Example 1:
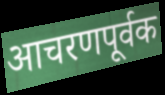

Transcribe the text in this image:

आचरणपूर्वक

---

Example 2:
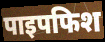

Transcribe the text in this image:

पाइपफिश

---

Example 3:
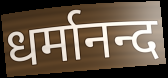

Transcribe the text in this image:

धर्मानन्द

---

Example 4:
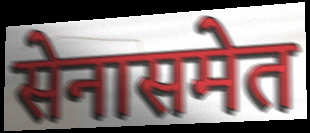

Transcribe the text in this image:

सेनासमेत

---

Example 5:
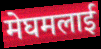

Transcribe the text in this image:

मेघमलाई